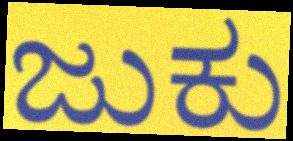
ಜುಕು